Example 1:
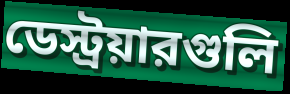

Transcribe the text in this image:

ডেস্ট্রয়ারগুলি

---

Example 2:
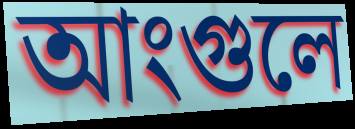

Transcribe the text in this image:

আংগুলে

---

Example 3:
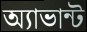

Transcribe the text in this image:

অ্যাভান্ট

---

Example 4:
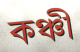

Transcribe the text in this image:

কঞ্চী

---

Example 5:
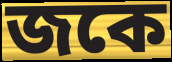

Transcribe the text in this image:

জকে